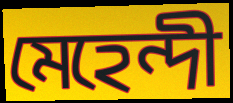
মেহেন্দী